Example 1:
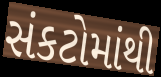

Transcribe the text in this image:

સંકટોમાંથી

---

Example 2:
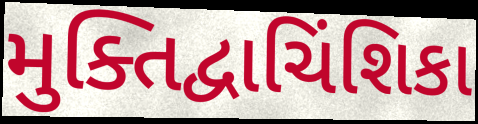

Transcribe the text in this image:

મુક્તિદ્વાચિંશિકા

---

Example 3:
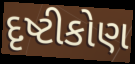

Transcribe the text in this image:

દૃષ્ટીકોણ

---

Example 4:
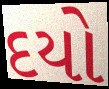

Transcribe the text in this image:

દયો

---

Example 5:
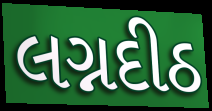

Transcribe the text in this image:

લગ્નદીઠ